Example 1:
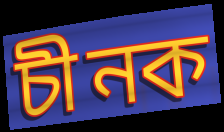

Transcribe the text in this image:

চীনক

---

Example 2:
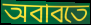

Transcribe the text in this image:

অবাবতে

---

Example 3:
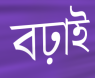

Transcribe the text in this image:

বঢ়াই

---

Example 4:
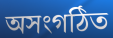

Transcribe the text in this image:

অসংগঠিত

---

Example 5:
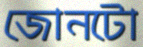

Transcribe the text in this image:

জোনটো